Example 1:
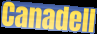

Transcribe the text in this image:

Canadell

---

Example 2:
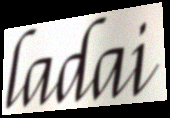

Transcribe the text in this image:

ladai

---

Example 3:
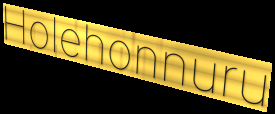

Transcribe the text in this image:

Holehonnuru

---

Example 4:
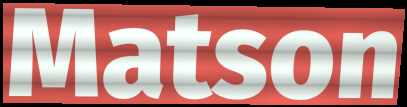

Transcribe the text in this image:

Matson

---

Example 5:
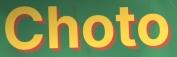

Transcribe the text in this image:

Choto